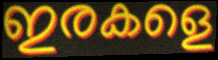
ഇരകളെ